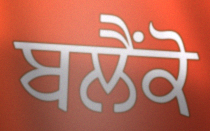
ਬਲੈਂਕੋ